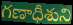
గణాధీశుని